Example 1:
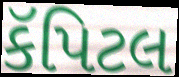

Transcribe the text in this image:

કૅપિટલ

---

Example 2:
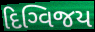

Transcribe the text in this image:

દિગ્વિજય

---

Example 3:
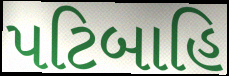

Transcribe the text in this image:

પટિબાહિ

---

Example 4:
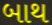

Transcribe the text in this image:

બાથ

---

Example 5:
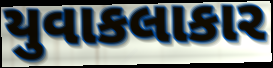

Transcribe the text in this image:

યુવાકલાકાર